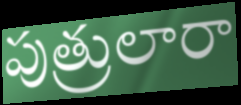
పుత్రులారా